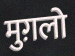
मुग़लो